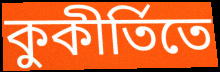
কুকীর্তিতে